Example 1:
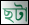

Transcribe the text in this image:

ছটা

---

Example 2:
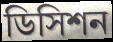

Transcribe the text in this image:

ডিসিশন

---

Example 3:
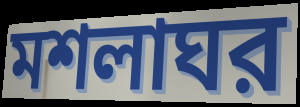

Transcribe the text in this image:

মশলাঘর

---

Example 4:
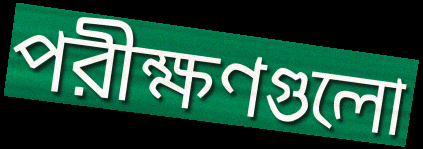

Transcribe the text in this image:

পরীক্ষণগুলো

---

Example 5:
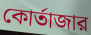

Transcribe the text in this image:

কোর্তাজার